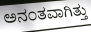
ಅನಂತವಾಗಿತ್ತು